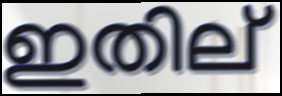
ഇതില്